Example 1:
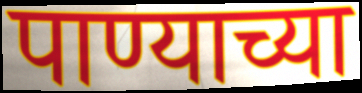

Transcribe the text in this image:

पाण्याच्या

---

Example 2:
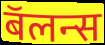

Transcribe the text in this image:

बॅलन्स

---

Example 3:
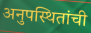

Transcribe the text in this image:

अनुपस्थितांची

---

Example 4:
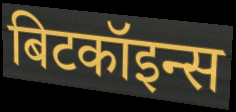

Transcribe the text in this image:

बिटकॉइन्स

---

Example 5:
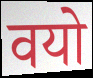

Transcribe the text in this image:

वयो